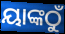
ୟାଙ୍କଠୁଁ